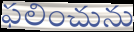
ఫలించును